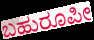
ಬಹುರೂಪೀ